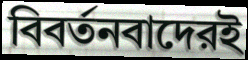
বিবর্তনবাদেরই